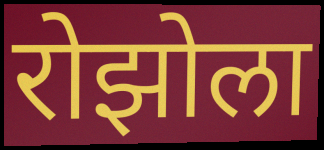
रोझोला